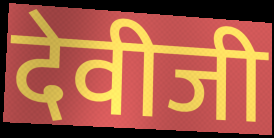
देवीजी